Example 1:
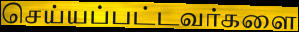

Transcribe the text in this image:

செய்யப்பட்டவர்களை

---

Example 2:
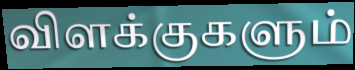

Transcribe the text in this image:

விளக்குகளும்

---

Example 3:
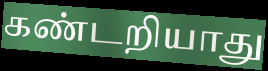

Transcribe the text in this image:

கண்டறியாது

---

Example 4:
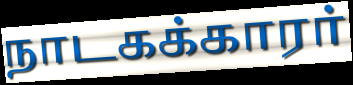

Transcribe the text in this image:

நாடகக்காரர்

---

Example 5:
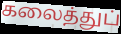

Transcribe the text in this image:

கலைத்துப்